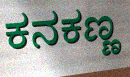
ಕನಕಣ್ಣ